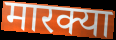
मारक्या